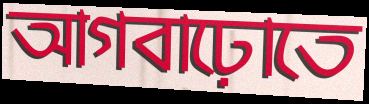
আগবাঢ়োতে